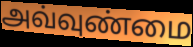
அவ்வுண்மை